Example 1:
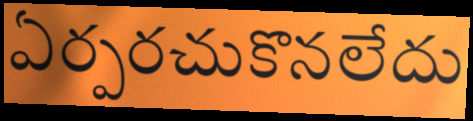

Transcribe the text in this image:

ఏర్పరచుకొనలేదు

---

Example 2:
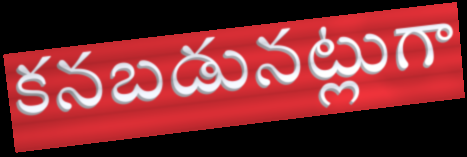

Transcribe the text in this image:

కనబడునట్లుగా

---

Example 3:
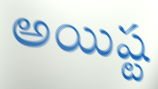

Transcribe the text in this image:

అయిష్ట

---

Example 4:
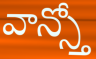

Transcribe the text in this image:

వాన్స్తో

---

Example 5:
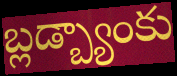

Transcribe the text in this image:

బ్లడ్బ్యాంకు